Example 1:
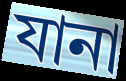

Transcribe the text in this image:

যানা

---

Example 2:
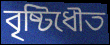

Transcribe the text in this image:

বৃষ্টিধৌত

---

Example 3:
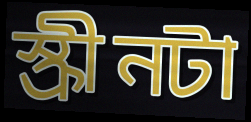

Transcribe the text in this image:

স্ক্রীনটা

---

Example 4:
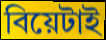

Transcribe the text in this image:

বিয়েটাই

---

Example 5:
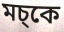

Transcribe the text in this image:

মচ্কে